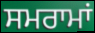
ਸਮਰਾਮਾਂ